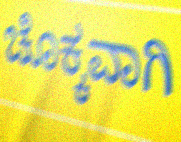
ಚೊಕ್ಕವಾಗಿ